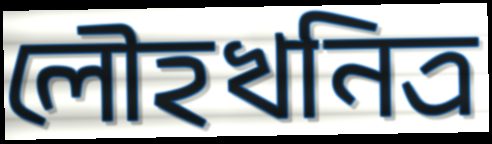
লৌহখনিত্র